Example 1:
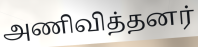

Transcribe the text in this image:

அணிவித்தனர்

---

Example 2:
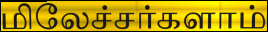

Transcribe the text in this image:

மிலேச்சர்களாம்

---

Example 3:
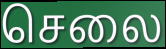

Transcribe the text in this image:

செலை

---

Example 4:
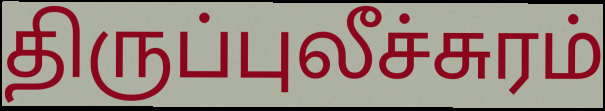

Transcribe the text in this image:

திருப்புலீச்சுரம்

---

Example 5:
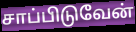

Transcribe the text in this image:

சாப்பிடுவேன்